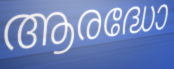
ആരദ്ധോ